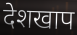
देशखाप